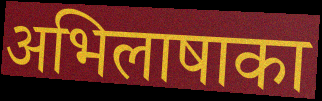
अभिलाषाका